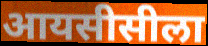
आयसीसीला